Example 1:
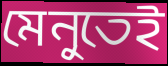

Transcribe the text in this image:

মেনুতেই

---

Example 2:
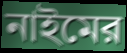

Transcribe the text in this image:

নাইমের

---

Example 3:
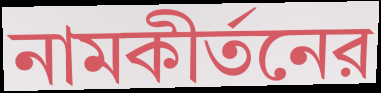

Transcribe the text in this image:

নামকীর্তনের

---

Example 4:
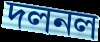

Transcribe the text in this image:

দলনল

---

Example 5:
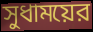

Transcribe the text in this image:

সুধাময়ের